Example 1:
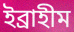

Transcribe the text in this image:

ইব্রাহীম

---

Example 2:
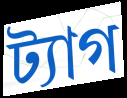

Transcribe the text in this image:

ট্যাগ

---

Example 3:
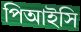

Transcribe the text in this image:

পিআইসি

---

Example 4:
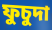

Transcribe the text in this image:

ফুচুদা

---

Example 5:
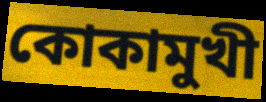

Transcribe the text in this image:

কোকামুখী